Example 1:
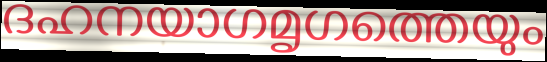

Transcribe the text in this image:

ദഹനയാഗമൃഗത്തെയും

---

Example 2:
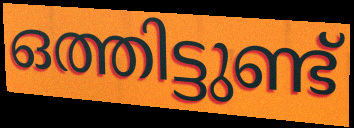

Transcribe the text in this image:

ഒത്തിട്ടുണ്ട്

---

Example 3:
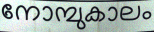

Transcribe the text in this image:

നോമ്പുകാലം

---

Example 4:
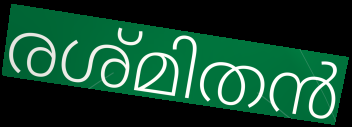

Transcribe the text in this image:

രശ്മിതൻ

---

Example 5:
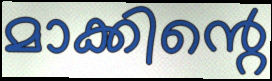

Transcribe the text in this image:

മാക്കിന്റെ